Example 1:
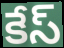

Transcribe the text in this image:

కేస్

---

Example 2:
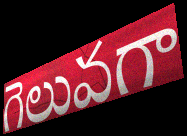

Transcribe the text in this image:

గెలువగా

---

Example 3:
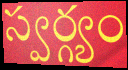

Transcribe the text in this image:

స్వర్గ్యం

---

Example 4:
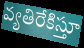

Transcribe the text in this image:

వ్యతిరేకిస్తూ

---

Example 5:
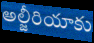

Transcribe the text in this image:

అల్జీరియాకు